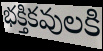
భక్తికవులకి